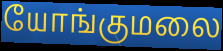
யோங்குமலை